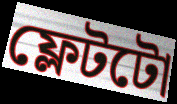
ফ্লেটটো